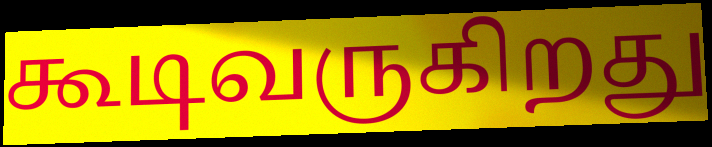
கூடிவருகிறது